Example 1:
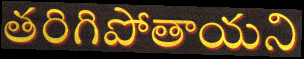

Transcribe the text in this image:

తరిగిపోతాయని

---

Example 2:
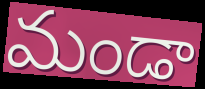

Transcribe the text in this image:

మండా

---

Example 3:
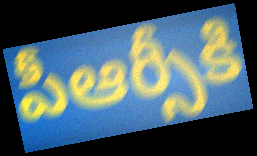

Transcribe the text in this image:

పీఆర్సీకి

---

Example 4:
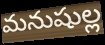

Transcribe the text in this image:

మనుషుల్ల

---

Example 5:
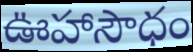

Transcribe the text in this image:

ఊహాసౌధం